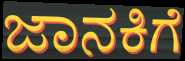
ಜಾನಕಿಗೆ